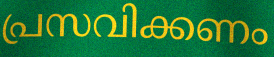
പ്രസവിക്കണം